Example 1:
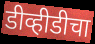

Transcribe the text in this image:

डीव्हीडीचा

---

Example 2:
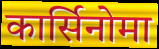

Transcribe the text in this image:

कार्सिनोमा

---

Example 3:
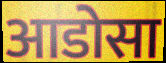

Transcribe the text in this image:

आडोसा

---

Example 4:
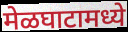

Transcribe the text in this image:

मेळघाटामध्ये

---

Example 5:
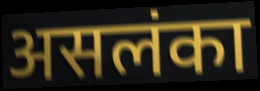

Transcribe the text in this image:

असलंका